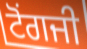
ਟੋਂਗਜੀ